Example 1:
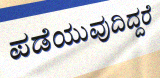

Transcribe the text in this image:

ಪಡೆಯುವುದಿದ್ದರೆ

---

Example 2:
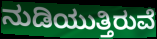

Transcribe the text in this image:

ನುಡಿಯುತ್ತಿರುವೆ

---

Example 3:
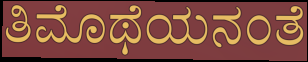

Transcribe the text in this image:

ತಿಮೊಥೆಯನಂತೆ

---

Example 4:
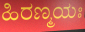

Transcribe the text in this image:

ಹಿರಣ್ಮಯಃ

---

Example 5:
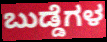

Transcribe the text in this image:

ಬುಡ್ಡೆಗಳ